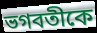
ভগবতীকে